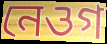
নেওগ